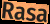
Rasa